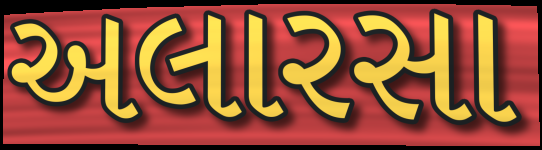
અલારસા